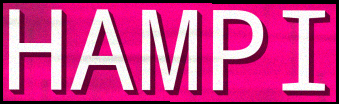
HAMPI